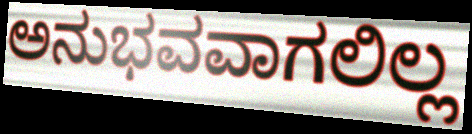
ಅನುಭವವಾಗಲಿಲ್ಲ